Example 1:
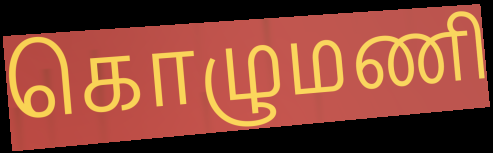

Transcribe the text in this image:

கொழுமணி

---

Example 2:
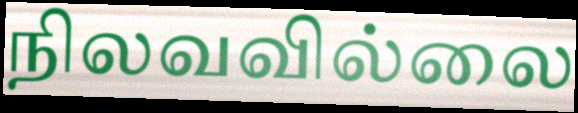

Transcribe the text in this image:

நிலவவில்லை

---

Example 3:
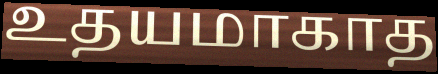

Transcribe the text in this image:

உதயமாகாத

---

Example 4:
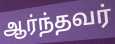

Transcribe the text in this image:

ஆர்ந்தவர்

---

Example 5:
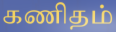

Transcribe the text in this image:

கணிதம்